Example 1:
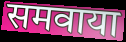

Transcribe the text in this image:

समवाया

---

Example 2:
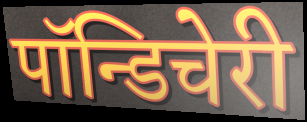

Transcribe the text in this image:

पॉन्डिचेरी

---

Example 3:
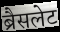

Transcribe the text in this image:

ब्रैसलेट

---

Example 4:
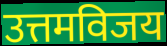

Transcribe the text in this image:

उत्तमविजय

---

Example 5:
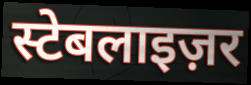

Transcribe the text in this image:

स्टेबलाइज़र